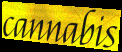
cannabis